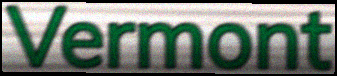
Vermont